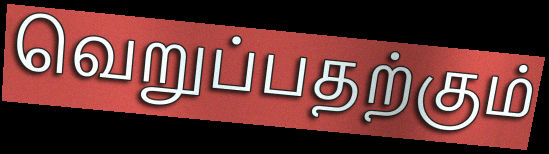
வெறுப்பதற்கும்